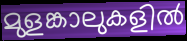
മുളങ്കാലുകളിൽ